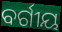
ବର୍ଗୀୟ